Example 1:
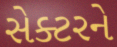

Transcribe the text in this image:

સેક્ટરને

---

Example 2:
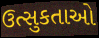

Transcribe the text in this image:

ઉત્સુકતાઓ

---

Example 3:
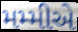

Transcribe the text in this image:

મમ્મીએ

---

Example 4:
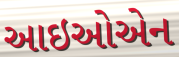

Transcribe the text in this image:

આઇઓએન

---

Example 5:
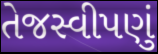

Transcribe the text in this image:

તેજસ્વીપણું